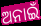
ଅନାଇଁ